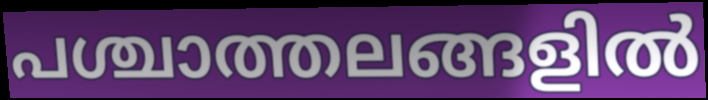
പശ്ചാത്തലങ്ങളിൽ